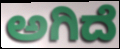
ಅಗಿದೆ